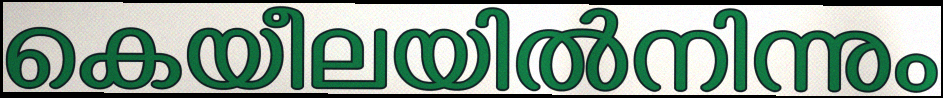
കെയീലയിൽനിന്നും